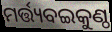
ମର୍ତ୍ତ୍ୟବଇକୁଣ୍ଠ